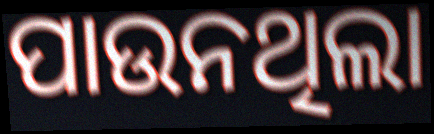
ପାଉନଥିଲା